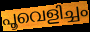
പൂവെളിച്ചം